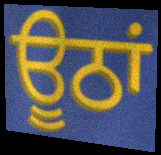
ਊਠਾਂ